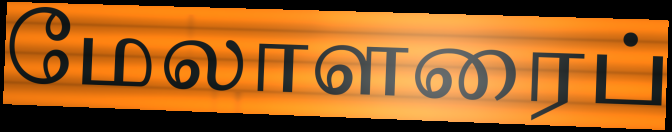
மேலாளரைப்